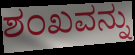
ಶಂಖವನ್ನು